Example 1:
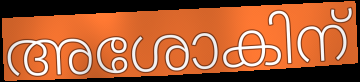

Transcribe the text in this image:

അശോകിന്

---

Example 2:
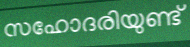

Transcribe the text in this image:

സഹോദരിയുണ്ട്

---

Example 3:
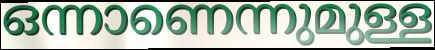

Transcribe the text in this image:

ഒന്നാണെന്നുമുള്ള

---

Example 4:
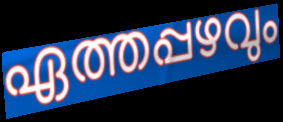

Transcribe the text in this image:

ഏത്തപ്പഴവും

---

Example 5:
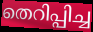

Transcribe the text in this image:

തെറിപ്പിച്ച